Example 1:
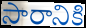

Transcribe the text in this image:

సారానికి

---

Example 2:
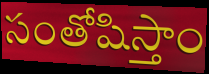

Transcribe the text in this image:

సంతోషిస్తాం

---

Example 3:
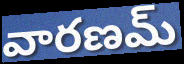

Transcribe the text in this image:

వారణమ్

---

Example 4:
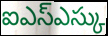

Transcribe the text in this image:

ఐఎస్ఎస్కు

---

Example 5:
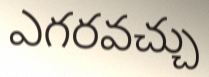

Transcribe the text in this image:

ఎగరవచ్చు